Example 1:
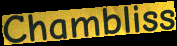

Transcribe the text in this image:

Chambliss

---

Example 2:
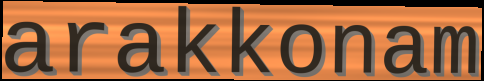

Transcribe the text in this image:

arakkonam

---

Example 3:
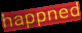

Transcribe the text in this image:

happned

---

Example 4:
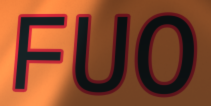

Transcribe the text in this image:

FUO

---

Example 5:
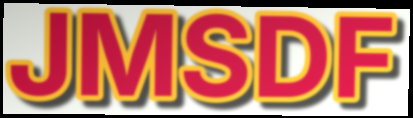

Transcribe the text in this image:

JMSDF